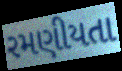
રમણીયતા